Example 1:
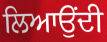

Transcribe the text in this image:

ਲਿਆਉਂਦੀ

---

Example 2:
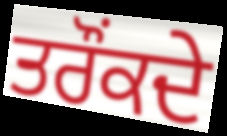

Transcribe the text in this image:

ਤਰੌਂਕਦੇ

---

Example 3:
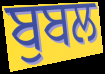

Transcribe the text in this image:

ਬੁਬਲ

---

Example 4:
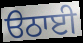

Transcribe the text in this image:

ੳਠਾਈ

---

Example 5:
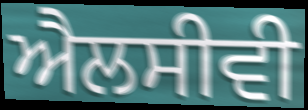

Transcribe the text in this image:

ਐਲਸੀਵੀ